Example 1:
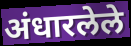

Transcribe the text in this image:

अंधारलेले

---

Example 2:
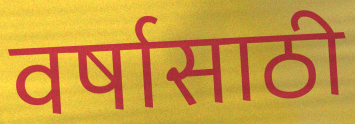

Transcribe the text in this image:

वर्षासाठी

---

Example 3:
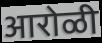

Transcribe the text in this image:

आरोळी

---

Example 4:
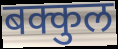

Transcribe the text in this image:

बक्कुल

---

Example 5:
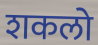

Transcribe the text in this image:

शकलो